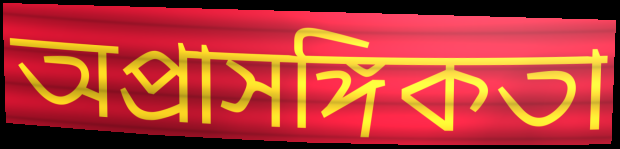
অপ্রাসঙ্গিকতা